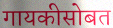
गायकीसोबत